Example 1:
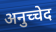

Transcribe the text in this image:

अनुच्चेद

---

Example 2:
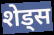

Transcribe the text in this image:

शेड्स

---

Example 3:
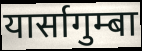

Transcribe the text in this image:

यार्सागुम्बा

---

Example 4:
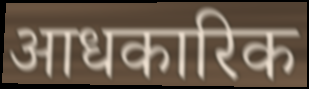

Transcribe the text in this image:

आधकारिक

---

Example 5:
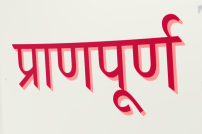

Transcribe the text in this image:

प्राणपूर्ण